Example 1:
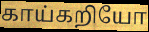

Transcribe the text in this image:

காய்கறியோ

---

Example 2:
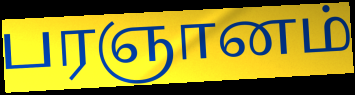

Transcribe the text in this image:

பரஞானம்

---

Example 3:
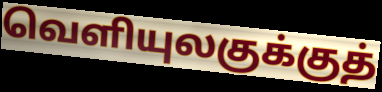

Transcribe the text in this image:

வெளியுலகுக்குத்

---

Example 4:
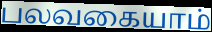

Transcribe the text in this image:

பலவகையாம்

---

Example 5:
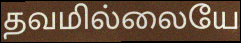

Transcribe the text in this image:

தவமில்லையே